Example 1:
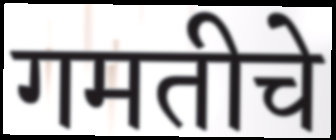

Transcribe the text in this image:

गमतीचे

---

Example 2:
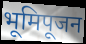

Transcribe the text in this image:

भूमिपूजन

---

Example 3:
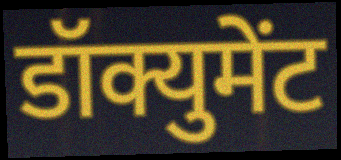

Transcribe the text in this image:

डॉक्युमेंट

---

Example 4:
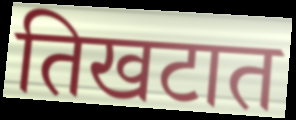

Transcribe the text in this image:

तिखटात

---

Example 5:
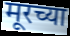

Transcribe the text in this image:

मूरच्या